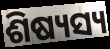
ଶିଷ୍ୟସ୍ୟ